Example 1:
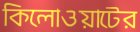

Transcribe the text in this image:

কিলোওয়াটের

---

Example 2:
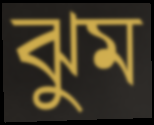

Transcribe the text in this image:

ঝুম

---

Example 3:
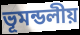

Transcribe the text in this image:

ভূমন্ডলীয়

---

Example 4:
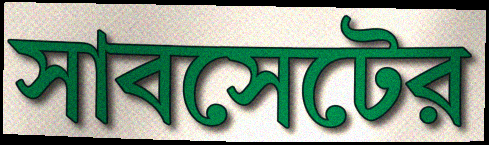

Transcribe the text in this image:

সাবসেটের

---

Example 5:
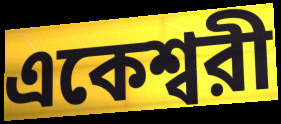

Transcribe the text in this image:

একেশ্বরী